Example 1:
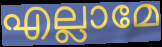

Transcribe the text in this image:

എല്ലാമേ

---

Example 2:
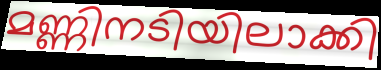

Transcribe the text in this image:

മണ്ണിനടിയിലാക്കി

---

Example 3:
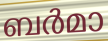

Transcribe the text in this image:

ബർമാ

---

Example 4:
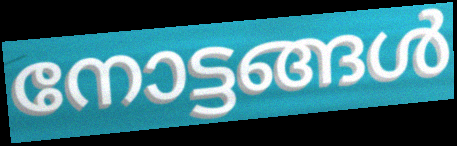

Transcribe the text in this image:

നോട്ടങ്ങൾ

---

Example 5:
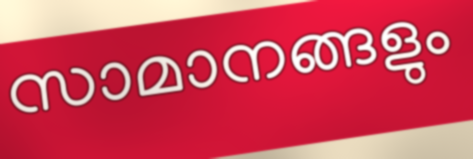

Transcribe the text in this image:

സാമാനങ്ങളും